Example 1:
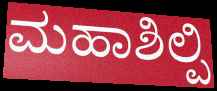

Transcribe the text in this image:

ಮಹಾಶಿಲ್ಪಿ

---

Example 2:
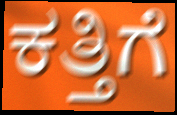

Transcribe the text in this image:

ಕತ್ತಿಗೆ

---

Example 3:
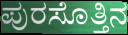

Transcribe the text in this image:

ಪುರಸೊತ್ತಿನ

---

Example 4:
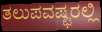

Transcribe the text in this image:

ತಲುಪವಷ್ಟರಲ್ಲಿ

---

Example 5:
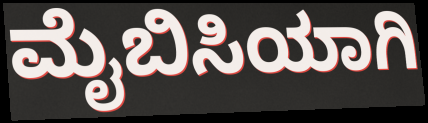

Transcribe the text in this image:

ಮೈಬಿಸಿಯಾಗಿ